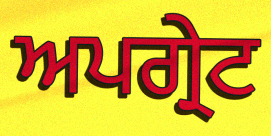
ਅਪਗ੍ਰੇਟ